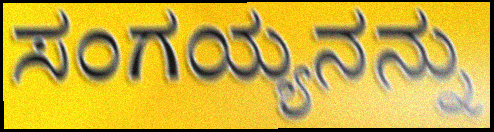
ಸಂಗಯ್ಯನನ್ನು